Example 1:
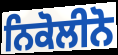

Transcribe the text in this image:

ਨਿਕੋਲੀਨੋ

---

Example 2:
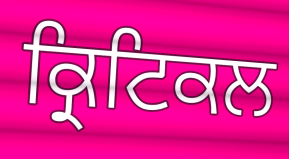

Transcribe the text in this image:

ਕ੍ਰਿਟਿਕਲ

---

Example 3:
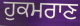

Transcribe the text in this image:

ਹੁਕਮਰਾਣ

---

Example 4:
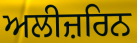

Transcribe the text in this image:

ਅਲੀਜ਼ਰਿਨ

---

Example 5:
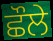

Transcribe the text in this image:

ਛੌਲੇ